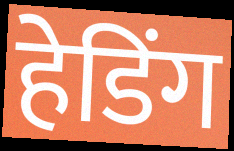
हेडिंग